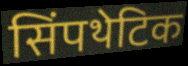
सिंपथेटिक